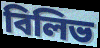
বিলিভ